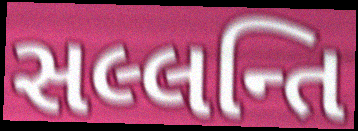
સલ્લન્તિ